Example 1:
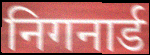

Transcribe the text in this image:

निगनार्ड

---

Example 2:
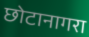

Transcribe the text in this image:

छोटानागरा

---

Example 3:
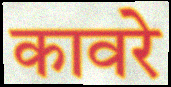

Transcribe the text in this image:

कावरे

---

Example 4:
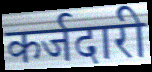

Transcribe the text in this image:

कर्जदारी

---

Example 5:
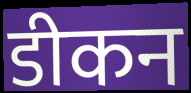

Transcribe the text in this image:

डीकन